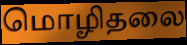
மொழிதலை